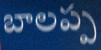
బాలప్ప